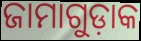
ଜାମାଗୁଡ଼ାକ